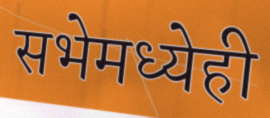
सभेमध्येही